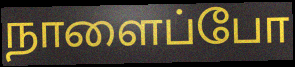
நாளைப்போ